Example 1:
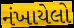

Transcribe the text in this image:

નંખાયેલો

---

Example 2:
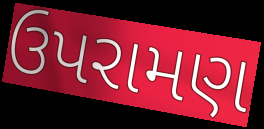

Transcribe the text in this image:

ઉપરામણ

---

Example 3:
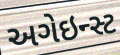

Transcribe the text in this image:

અગેઇન્સ્ટ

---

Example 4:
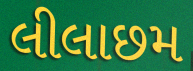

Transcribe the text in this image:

લીલાછમ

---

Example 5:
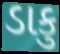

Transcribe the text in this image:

ડાકુ